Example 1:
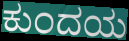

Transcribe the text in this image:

ಕುಂದಯ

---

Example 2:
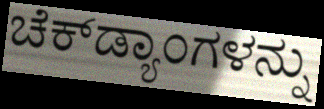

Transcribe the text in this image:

ಚೆಕ್‌ಡ್ಯಾಂಗಳನ್ನು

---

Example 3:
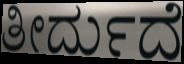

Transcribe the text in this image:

ತೀರ್ದುದೆ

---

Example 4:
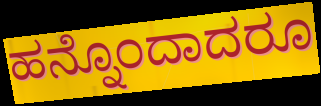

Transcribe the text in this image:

ಹನ್ನೊಂದಾದರೂ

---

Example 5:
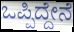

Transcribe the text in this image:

ಒಪ್ಪಿದ್ದೇನೆ